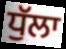
ਧੁੱਲਾ